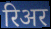
रिअर